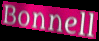
Bonnell